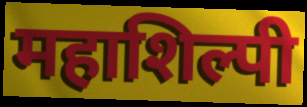
महाशिल्पी